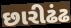
છારીઢંઢ